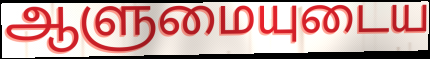
ஆளுமையுடைய